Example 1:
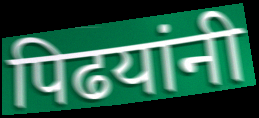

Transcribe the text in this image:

पिढयांनी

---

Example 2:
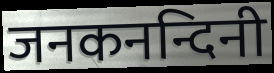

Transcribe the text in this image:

जनकनन्दिनी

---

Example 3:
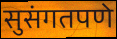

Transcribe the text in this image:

सुसंगतपणे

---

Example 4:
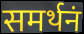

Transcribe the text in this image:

समर्थनं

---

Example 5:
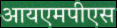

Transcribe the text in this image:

आयएमपीएस